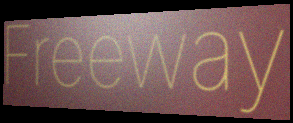
Freeway